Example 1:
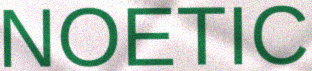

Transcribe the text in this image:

NOETIC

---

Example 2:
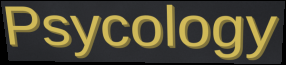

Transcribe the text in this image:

Psycology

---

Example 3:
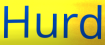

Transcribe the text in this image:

Hurd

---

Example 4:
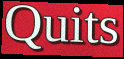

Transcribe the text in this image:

Quits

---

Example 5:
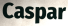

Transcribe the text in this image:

Caspar